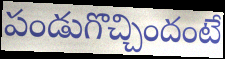
పండుగొచ్చిందంటే